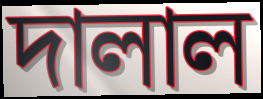
দালাল